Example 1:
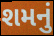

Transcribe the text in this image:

શમનું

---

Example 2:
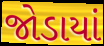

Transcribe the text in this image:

જોડાયાં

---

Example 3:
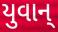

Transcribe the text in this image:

યુવાન્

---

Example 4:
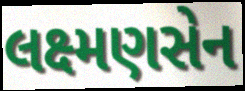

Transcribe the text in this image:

લક્ષ્મણસેન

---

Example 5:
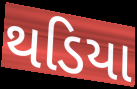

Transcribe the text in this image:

થડિયા